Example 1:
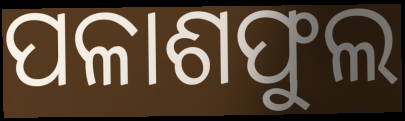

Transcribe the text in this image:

ପଳାଶଫୁଲ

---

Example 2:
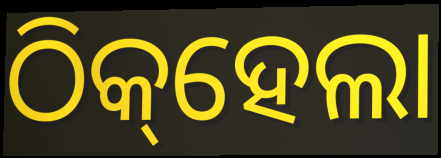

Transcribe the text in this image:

ଠିକ୍‌ହେଲା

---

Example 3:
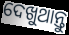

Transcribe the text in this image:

ଦେଖୁଥାନ୍ତୁ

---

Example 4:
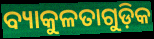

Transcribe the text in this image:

ବ୍ୟାକୁଳତାଗୁଡ଼ିକ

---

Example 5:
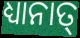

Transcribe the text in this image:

ଧ୍ୟାନାତ୍